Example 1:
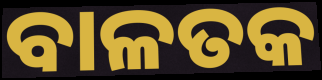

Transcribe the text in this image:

ବାଳତକ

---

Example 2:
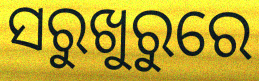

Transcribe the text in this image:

ସରୁଖୁରୁରେ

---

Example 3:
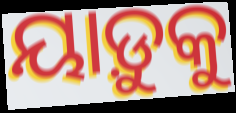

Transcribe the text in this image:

ୟାଡ଼ୁକୁ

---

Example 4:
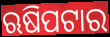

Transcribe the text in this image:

ଋଷିପଟାର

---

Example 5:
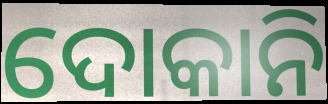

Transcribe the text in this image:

ଦୋକାନି